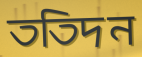
ততিদন